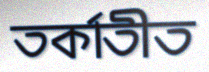
তৰ্কাতীত